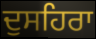
ਦੁਸਹਿਰਾ